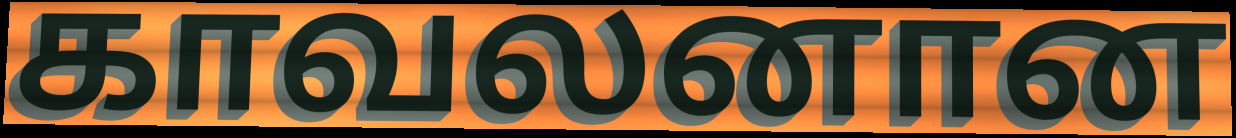
காவலனான